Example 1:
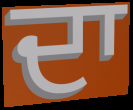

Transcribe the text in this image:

ਦਾ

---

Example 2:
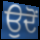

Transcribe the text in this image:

ਉਦੋਂ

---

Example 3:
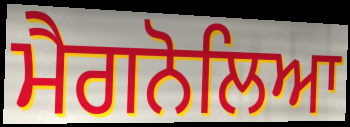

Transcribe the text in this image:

ਮੈਗਨੋਲਿਆ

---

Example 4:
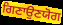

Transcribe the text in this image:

ਗਿਣਾਉਣਯੋਗ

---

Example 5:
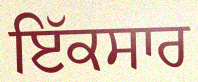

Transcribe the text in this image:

ਇੱਕਸਾਰ